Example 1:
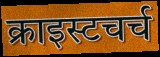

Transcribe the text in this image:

क्राइस्टचर्च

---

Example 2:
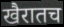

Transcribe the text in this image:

खैरातच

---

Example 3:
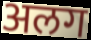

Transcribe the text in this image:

अलग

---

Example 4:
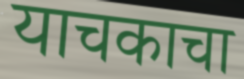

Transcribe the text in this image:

याचकाचा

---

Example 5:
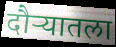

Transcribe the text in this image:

दौऱ्यातला